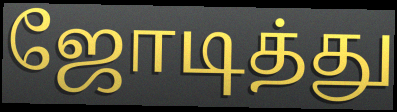
ஜோடித்து